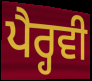
ਪੈਰ੍ਹਵੀ